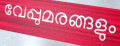
വേപ്പുമരങ്ങളും